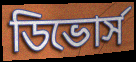
ডিভোর্স